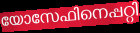
യോസേഫിനെപ്പറ്റി